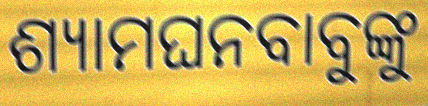
ଶ୍ୟାମଘନବାବୁଙ୍କୁ